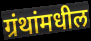
ग्रंथांमधील